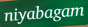
niyabagam